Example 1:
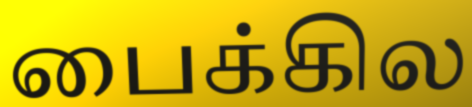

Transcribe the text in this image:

பைக்கில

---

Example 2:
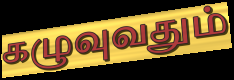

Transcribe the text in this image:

கழுவுவதும்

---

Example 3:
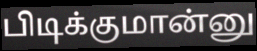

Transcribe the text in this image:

பிடிக்குமான்னு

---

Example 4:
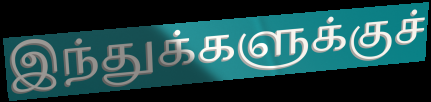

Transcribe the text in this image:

இந்துக்களுக்குச்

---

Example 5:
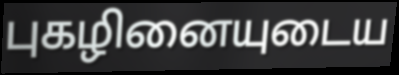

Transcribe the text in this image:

புகழினையுடைய